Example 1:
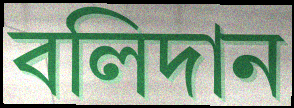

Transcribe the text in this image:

বলিদান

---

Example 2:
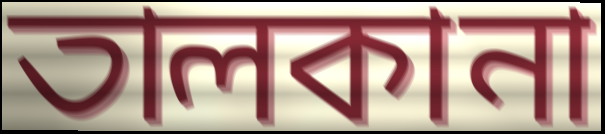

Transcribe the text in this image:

তালকানা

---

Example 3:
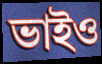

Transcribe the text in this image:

ভাইও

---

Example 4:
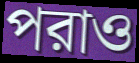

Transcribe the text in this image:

পরাও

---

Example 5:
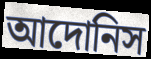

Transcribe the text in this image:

আদোনিস